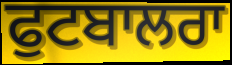
ਫੁਟਬਾਲਰਾ